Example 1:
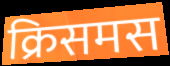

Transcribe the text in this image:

क्रिसमस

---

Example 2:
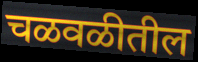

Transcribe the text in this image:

चळवळीतील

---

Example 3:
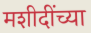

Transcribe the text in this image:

मशीदींच्या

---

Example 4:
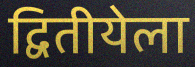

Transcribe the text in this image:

द्वितीयेला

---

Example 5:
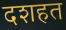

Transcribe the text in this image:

दशहत